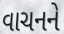
વાચનને